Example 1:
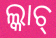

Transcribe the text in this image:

ଲ୍କାଚ୍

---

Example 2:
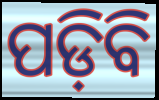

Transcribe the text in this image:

ପଡ଼ିବି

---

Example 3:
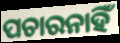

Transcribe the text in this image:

ପଚାରନାହିଁ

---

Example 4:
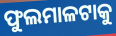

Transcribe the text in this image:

ଫୁଲମାଳଟାକୁ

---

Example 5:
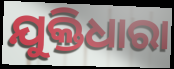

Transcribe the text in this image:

ଯୁକ୍ତିଧାରା